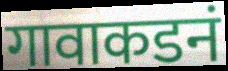
गावाकडनं